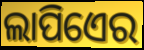
ଲାପିଏେର